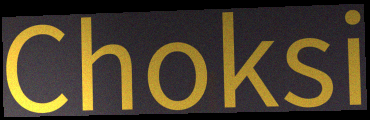
Choksi